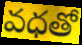
వధతో